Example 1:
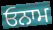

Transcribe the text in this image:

ਓਨਾਮ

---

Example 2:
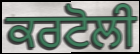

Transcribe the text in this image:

ਕਰਟੋਲੀ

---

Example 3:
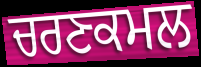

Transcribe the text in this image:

ਚਰਣਕਮਲ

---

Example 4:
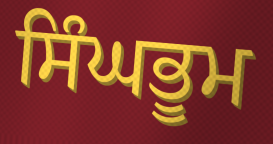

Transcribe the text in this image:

ਸਿੰਘਭੂਮ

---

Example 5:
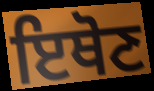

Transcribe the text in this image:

ਇਥੋਣ